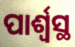
ପାର୍ଶ୍ବସ୍ଥ